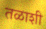
तळाशी